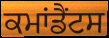
ਕਮਾਂਡੈਂਟਸ